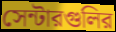
সেন্টারগুলির